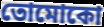
তোমোকো